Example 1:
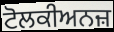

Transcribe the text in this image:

ਟੋਲਕੀਅਨਜ਼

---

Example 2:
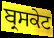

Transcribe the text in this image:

ਬ੍ਰਸਕੇਟ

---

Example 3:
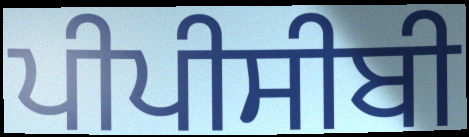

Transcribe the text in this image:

ਪੀਪੀਸੀਬੀ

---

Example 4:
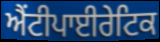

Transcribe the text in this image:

ਐਂਟੀਪਾਈਰੇਟਿਕ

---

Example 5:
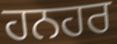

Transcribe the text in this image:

ਹਨਹਰ